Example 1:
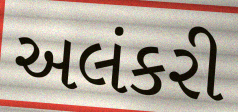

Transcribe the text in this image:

અલંકરી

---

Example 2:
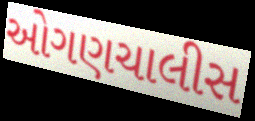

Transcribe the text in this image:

ઓગણચાલીસ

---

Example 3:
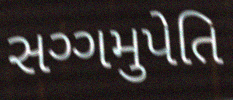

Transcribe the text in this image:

સગ્ગમુપેતિ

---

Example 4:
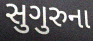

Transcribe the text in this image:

સુગુરુના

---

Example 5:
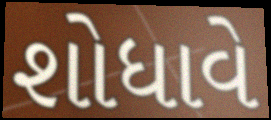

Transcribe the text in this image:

શોધાવે